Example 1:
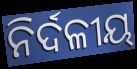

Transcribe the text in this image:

ନିର୍ଦଳୀୟ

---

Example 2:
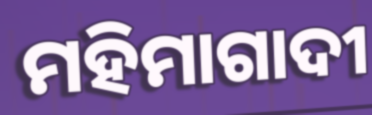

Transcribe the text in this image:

ମହିମାଗାଦୀ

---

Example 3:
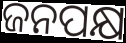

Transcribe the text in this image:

ଜନପକ୍ଷ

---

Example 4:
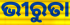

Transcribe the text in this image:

ଭୀରୁତା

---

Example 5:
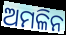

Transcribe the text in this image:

ଅମଳିନ